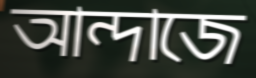
আন্দাজে